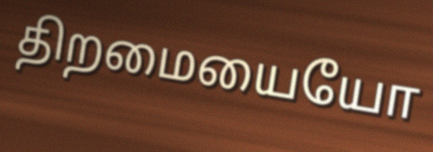
திறமையையோ